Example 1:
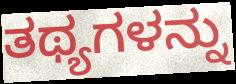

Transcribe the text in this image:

ತಥ್ಯಗಳನ್ನು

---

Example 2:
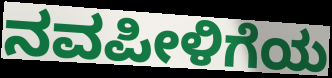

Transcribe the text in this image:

ನವಪೀಳಿಗೆಯ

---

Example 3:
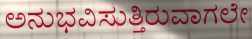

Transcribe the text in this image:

ಅನುಭವಿಸುತ್ತಿರುವಾಗಲೇ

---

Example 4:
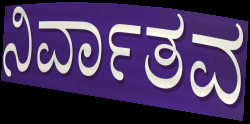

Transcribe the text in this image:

ನಿರ್ವಾತವ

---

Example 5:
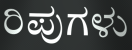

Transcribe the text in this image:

ರಿಪುಗಳು